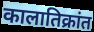
कालातिक्रांत